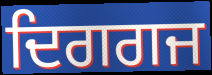
ਦਿਗਗਜ